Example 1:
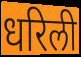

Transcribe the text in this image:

धरिली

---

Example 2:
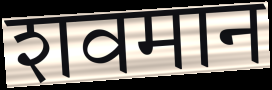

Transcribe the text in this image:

शवमान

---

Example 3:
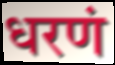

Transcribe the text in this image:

धरणं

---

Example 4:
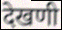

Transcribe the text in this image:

देखणी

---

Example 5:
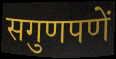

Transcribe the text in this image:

सगुणपणें